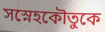
সস্নেহকৌতুকে